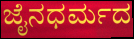
ಜೈನಧರ್ಮದ